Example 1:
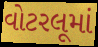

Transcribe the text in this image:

વોટરલૂમાં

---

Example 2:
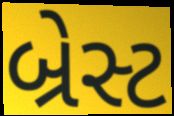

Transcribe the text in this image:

બ્રેસ્ટ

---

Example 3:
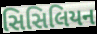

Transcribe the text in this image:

સિસિલિયન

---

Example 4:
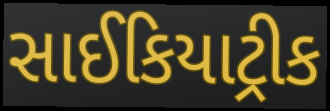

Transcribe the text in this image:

સાઈકિયાટ્રીક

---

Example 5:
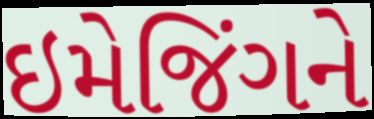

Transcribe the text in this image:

ઇમેજિંગને